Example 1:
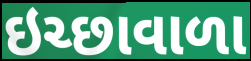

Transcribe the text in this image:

ઇચ્છાવાળા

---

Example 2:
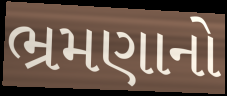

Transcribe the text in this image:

ભ્રમણાનો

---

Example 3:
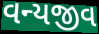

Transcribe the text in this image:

વન્યજીવ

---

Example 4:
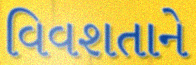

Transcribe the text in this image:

વિવશતાને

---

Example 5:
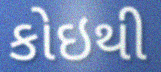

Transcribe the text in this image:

કોઇથી